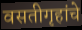
वसतीगृहांचे